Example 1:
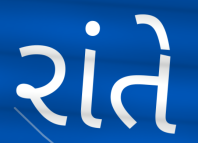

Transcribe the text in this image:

રાંતે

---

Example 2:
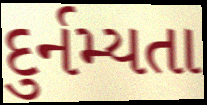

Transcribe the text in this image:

દુર્નમ્યતા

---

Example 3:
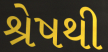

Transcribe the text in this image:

શ્રેષથી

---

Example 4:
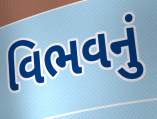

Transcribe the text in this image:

વિભવનું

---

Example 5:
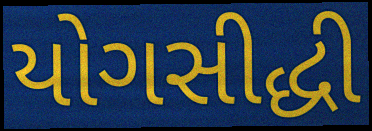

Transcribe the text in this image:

યોગસીદ્ધી